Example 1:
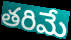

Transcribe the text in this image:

తరిమే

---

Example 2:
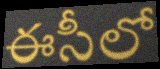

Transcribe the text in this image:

ఈసీలో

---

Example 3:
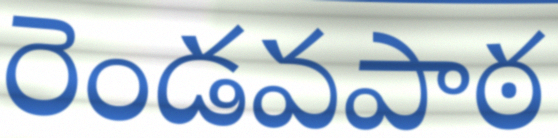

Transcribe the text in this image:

రెండవపాఠ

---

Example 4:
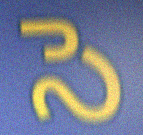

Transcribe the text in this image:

సె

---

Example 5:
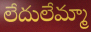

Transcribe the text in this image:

లేదులేమ్మా